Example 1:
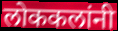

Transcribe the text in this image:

लोककलांनी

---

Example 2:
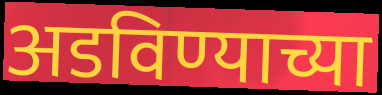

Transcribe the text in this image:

अडविण्याच्या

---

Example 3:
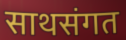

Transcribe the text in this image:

साथसंगत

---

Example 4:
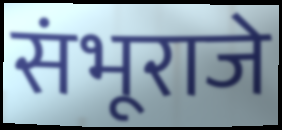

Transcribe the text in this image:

संभूराजे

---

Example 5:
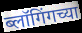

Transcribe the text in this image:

ब्लॉगिंगच्या